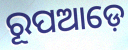
ରୂପଆଡ଼େ